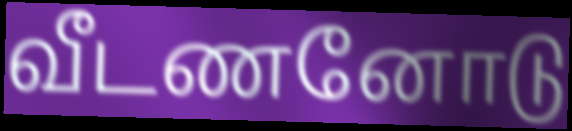
வீடணனோடு